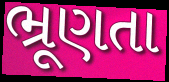
ભ્રૂણતા